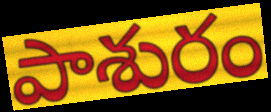
పాశురం